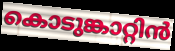
കൊടുങ്കാറ്റിൻ